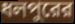
ধলপুরের